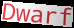
Dwarf